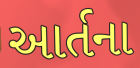
આર્તના